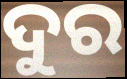
ଦୁର